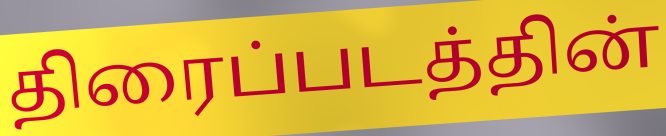
திரைப்படத்தின்